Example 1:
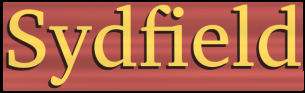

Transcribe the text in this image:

Sydfield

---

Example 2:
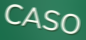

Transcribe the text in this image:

CASO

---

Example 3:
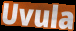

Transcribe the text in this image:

Uvula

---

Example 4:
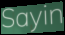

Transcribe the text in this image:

Sayin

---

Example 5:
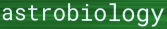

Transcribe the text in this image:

astrobiology